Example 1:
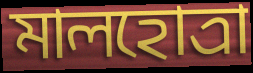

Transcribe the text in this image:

মালহোত্রা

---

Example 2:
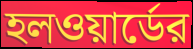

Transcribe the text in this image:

হলওয়ার্ডের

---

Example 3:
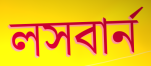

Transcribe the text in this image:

লসবার্ন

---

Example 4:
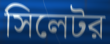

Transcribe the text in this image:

সিলেটর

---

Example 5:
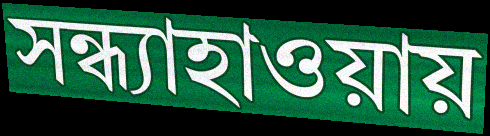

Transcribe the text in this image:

সন্ধ্যাহাওয়ায়